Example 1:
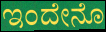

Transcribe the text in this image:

ಇಂದೇನೊ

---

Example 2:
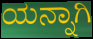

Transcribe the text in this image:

ಯನ್ನಾಗಿ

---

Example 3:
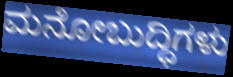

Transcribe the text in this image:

ಮನೋಬುದ್ಧಿಗಳು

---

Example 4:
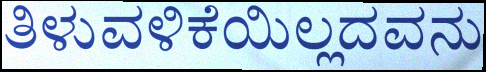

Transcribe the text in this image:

ತಿಳುವಳಿಕೆಯಿಲ್ಲದವನು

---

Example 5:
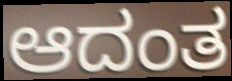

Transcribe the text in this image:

ಆದಂತ